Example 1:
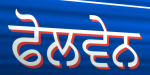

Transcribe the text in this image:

ਫੋਲਵੇਨ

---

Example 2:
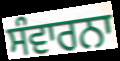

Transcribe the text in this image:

ਸੰਵਾਰਨਾ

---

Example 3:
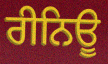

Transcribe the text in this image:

ਰੀਨਿਊ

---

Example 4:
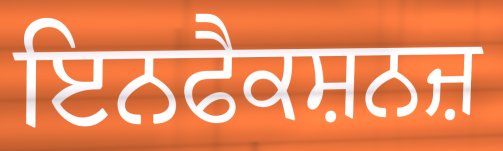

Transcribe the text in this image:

ਇਨਫੈਕਸ਼ਨਜ਼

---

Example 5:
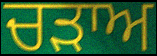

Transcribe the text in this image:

ਚੜਾਅ